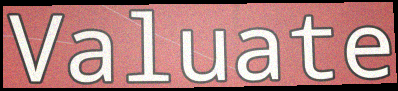
Valuate